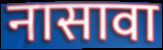
नासावा